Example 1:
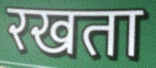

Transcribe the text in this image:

रखता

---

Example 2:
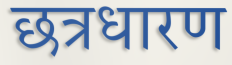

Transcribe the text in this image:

छत्रधारण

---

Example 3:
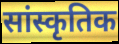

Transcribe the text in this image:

सांस्कृतिक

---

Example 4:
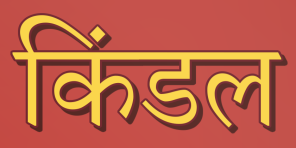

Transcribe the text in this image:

किंडल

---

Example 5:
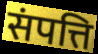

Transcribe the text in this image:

संपत्ति